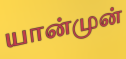
யான்முன்